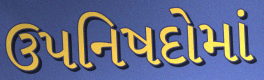
ઉપનિષદોમાં